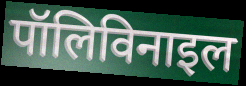
पॉलिविनाइल